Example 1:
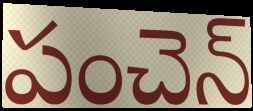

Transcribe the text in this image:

పంచెన్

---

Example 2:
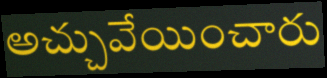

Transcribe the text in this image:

అచ్చువేయించారు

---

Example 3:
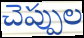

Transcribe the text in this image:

చెప్పుల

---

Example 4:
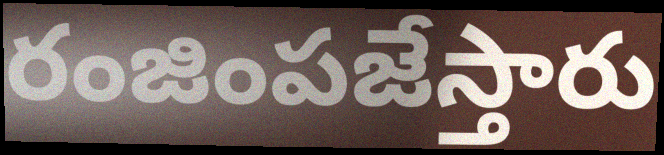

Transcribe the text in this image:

రంజింపజేస్తారు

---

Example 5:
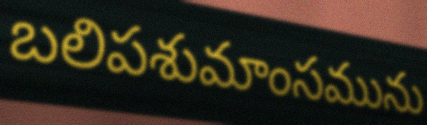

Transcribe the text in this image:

బలిపశుమాంసమును